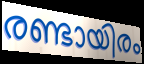
രണ്ടായിരം